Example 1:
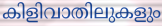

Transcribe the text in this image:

കിളിവാതിലുകളും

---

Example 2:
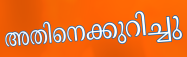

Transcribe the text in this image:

അതിനെക്കുറിച്ചു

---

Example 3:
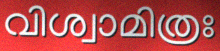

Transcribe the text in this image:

വിശ്വാമിത്രഃ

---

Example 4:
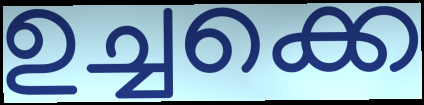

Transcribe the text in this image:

ഉച്ചക്കെ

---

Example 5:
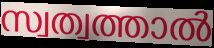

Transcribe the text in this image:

സ്വത്വത്താൽ